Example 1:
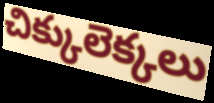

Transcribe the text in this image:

చిక్కులెక్కలు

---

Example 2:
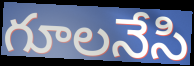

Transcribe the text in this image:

గూలనేసి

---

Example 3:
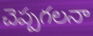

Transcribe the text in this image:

చెప్పగలనా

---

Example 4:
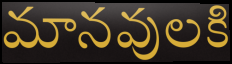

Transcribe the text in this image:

మానవులకి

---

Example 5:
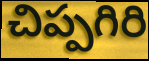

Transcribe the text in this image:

చిప్పగిరి